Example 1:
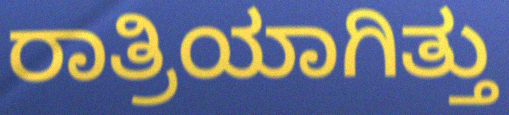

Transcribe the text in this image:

ರಾತ್ರಿಯಾಗಿತ್ತು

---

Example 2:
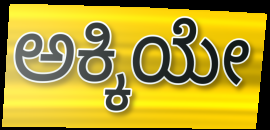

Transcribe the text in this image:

ಅಕ್ಕಿಯೇ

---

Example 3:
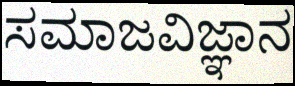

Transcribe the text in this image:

ಸಮಾಜವಿಜ್ಞಾನ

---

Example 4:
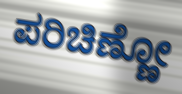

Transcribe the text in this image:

ಪರಿಚಿಣ್ಣೋ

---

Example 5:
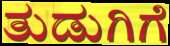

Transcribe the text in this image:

ತುಡುಗಿಗೆ